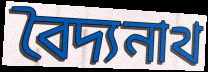
বৈদ্যনাথ